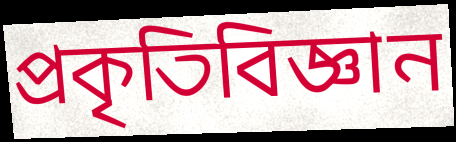
প্রকৃতিবিজ্ঞান